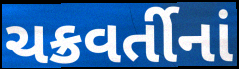
ચક્રવર્તીનાં